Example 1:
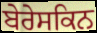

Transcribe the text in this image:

ਬੇਰੇਸਕਿਨ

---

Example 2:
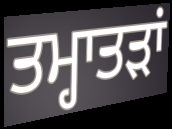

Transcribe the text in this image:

ਤਮ੍ਹਾਤੜਾਂ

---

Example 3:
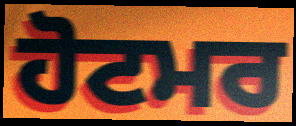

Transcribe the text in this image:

ਹੋਟਮਰ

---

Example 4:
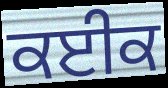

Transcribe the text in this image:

ਕਈਕ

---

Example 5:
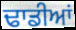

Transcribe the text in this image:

ਢਾਡੀਆਂ